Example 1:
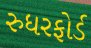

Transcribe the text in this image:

રુધરફોર્ડ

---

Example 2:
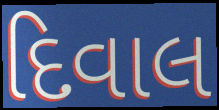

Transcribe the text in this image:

દિવાલ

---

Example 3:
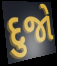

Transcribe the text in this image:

દુજો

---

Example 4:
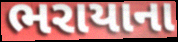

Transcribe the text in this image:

ભરાયાના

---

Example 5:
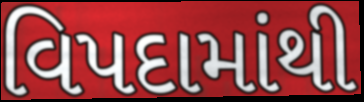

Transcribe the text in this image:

વિપદામાંથી